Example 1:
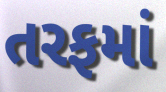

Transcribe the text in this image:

તરફમાં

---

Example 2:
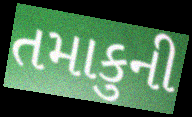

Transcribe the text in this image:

તમાકુની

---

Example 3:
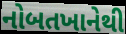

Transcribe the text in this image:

નોબતખાનેથી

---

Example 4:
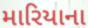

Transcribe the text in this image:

મારિયાના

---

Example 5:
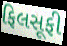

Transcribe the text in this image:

ફિલસૂફી